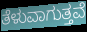
ತೆಳುವಾಗುತ್ತವೆ